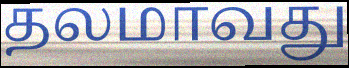
தலமாவது